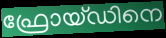
ഫ്രോയ്ഡിനെ